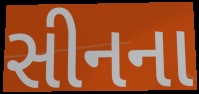
સીનના